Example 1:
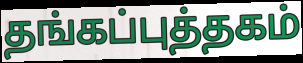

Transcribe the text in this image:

தங்கப்புத்தகம்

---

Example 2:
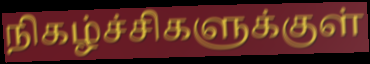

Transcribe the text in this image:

நிகழ்ச்சிகளுக்குள்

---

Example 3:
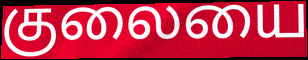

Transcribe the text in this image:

குலையை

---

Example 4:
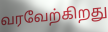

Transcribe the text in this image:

வரவேற்கிறது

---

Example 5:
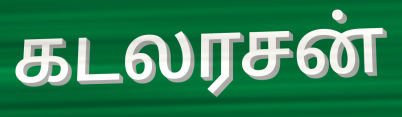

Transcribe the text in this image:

கடலரசன்